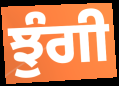
ਝੁੰਗੀ